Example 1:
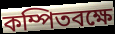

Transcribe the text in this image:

কম্পিতবক্ষে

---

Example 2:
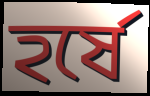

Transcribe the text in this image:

হর্ষে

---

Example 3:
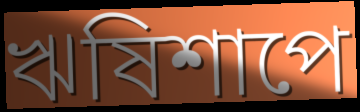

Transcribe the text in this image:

ঋষিশাপে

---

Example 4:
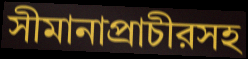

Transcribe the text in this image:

সীমানাপ্রাচীরসহ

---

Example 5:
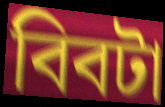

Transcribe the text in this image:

বিবটা